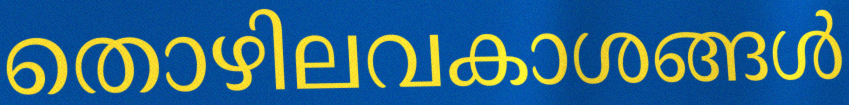
തൊഴിലവകാശങ്ങൾ